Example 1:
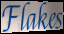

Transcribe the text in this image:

Flakes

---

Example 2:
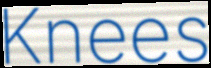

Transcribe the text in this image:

Knees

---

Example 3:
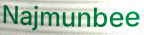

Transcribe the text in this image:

Najmunbee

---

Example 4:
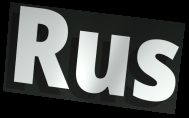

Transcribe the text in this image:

Rus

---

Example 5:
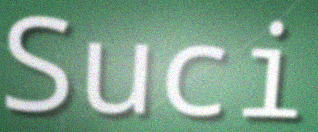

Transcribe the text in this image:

Suci